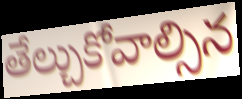
తేల్చుకోవాల్సిన